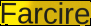
Farcire